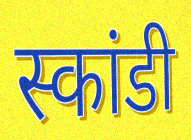
स्कांडी